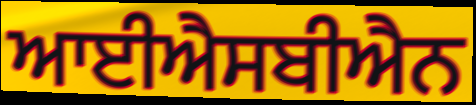
ਆਈਐਸਬੀਐਨ